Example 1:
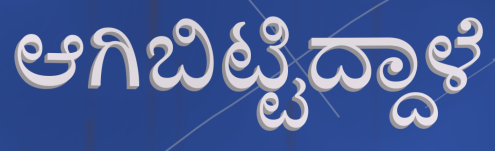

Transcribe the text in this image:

ಆಗಿಬಿಟ್ಟಿದ್ದಾಳೆ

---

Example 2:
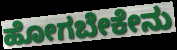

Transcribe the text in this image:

ಹೋಗಬೇಕೇನು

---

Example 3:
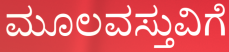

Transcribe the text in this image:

ಮೂಲವಸ್ತುವಿಗೆ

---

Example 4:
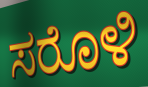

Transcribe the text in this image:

ಸರೊಳಿ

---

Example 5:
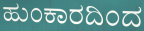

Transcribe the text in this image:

ಹುಂಕಾರದಿಂದ